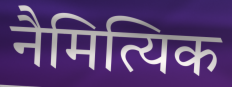
नैमित्यिक